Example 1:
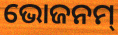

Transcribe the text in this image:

ଭୋଜନମ୍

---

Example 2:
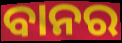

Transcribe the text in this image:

ବାନର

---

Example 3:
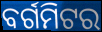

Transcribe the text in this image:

ବର୍ଗମିଟର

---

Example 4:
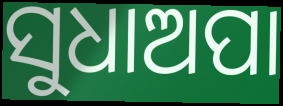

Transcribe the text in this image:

ସୁଧାଅପା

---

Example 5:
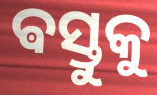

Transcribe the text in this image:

ଵସ୍ତୁକୁ